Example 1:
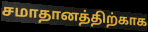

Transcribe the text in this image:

சமாதானத்திற்காக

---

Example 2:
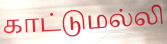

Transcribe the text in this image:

காட்டுமல்லி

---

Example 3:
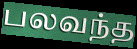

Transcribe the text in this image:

பலவந்த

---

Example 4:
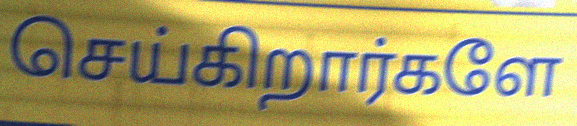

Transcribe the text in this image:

செய்கிறார்களே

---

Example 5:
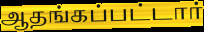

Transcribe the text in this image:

ஆதங்கப்பட்டார்